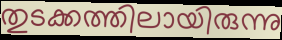
തുടക്കത്തിലായിരുന്നു